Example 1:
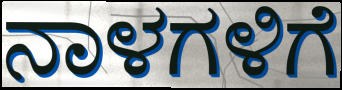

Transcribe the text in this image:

ನಾಳಗಳಿಗೆ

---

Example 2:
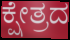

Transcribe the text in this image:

ಕ್ಷೇತ್ರದ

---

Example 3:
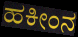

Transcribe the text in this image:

ಹಕೀಂನ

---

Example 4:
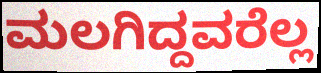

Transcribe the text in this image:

ಮಲಗಿದ್ದವರೆಲ್ಲ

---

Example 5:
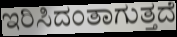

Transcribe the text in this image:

ಇರಿಸಿದಂತಾಗುತ್ತದೆ